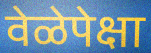
वेळेपेक्षा